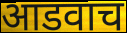
आडवाच